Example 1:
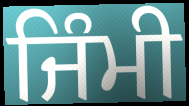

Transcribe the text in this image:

ਜਿੰਮੀ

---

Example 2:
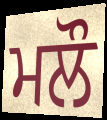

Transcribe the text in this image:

ਮਲੌ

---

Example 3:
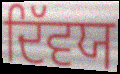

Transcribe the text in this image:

ਦਿੱਵਯ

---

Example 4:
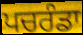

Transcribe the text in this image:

ਪਚਰੰਡਾ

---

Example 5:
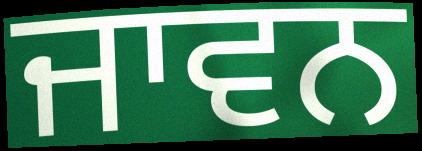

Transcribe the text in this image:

ਜਾਵਨ